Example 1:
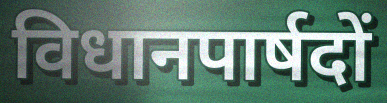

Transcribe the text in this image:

विधानपार्षदों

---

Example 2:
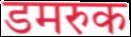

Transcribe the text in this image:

डमरुक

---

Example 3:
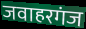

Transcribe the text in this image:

जवाहरगंज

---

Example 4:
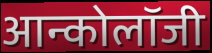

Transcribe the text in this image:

आन्कोलॉजी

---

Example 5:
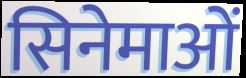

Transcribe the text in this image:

सिनेमाओं